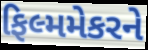
ફિલ્મમેકરને